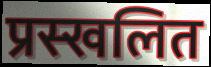
प्रस्खलित